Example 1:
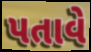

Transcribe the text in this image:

પતાવે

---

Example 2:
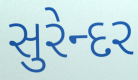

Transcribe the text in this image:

સુરેન્દર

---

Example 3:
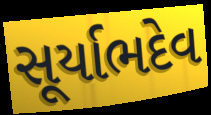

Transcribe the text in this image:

સૂર્યાભદેવ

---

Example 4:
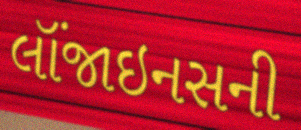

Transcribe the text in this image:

લૉંજાઇનસની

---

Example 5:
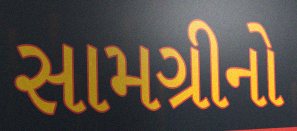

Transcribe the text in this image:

સામગ્રીનો